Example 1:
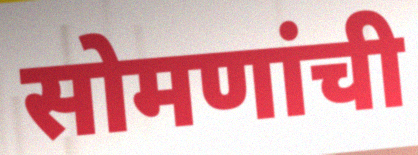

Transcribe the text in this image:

सोमणांची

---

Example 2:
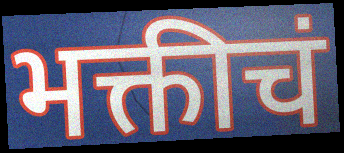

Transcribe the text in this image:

भक्तीचं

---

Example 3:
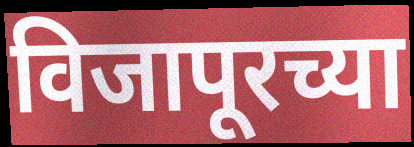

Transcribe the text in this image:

विजापूरच्या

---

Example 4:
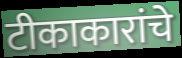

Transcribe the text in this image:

टीकाकारांचे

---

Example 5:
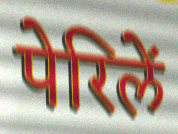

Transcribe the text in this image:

पेरिलें